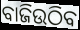
ବାଜିଉଠିବ